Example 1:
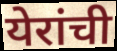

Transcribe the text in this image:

येरांची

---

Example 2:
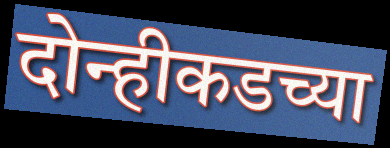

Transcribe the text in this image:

दोन्हीकडच्या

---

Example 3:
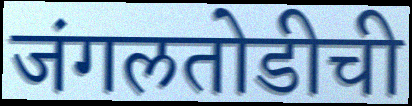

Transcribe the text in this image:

जंगलतोडीची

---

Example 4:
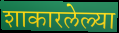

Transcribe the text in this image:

शाकारलेल्या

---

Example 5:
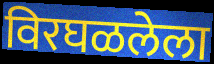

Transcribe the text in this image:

विरघळलेला